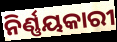
ନିର୍ଣ୍ଣୟକାରୀ